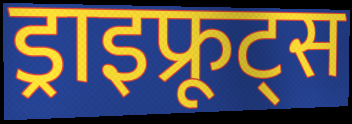
ड्राइफ्रूट्स